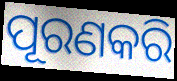
ପୂରଣକରି